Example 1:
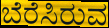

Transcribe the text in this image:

ಬೆರೆಸಿರುವ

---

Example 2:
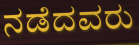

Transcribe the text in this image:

ನಡೆದವರು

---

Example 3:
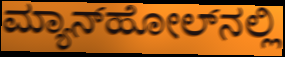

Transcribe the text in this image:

ಮ್ಯಾನ್‌ಹೋಲ್‌ನಲ್ಲಿ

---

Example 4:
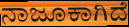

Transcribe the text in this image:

ನಾಜೂಕಾಗಿದೆ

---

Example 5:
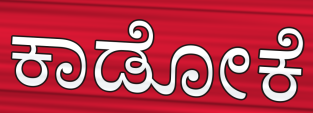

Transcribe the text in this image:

ಕಾಡೋಕೆ